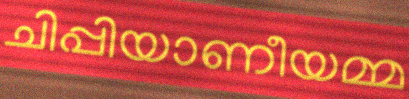
ചിപ്പിയാണീയമ്മ